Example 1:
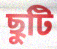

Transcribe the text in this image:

ছুটি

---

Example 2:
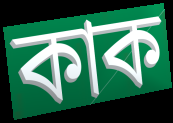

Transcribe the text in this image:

কাক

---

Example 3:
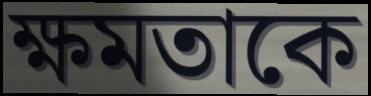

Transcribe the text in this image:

ক্ষমতাকে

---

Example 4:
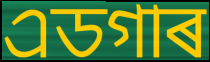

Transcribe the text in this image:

এডগাৰ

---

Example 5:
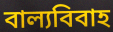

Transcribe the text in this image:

বাল্যবিবাহ